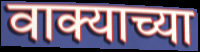
वाक्याच्या